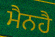
ਮੈਨਹੈ